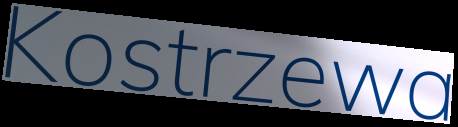
Kostrzewa